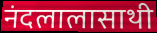
नंदलालासाथी